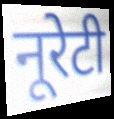
नूरेटी